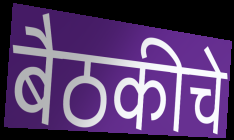
बैठकीचे